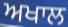
ਅਖਾਲ